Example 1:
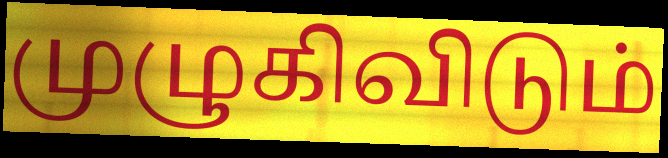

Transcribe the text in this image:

முழுகிவிடும்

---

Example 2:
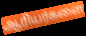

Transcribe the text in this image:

ஆரியர்களை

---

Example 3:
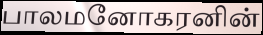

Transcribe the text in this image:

பாலமனோகரனின்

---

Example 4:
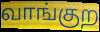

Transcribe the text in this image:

வாங்குற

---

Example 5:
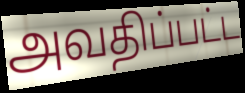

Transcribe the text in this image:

அவதிப்பட்ட